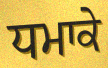
ਧਮਾਕੇ